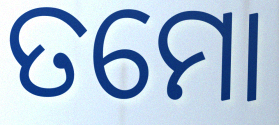
ତମୋ